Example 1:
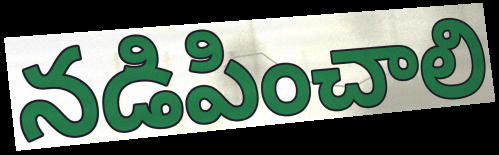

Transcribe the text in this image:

నడిపించాలి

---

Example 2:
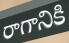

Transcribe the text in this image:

రాగానికి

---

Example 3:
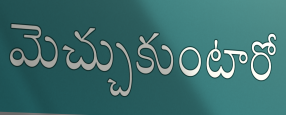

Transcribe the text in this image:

మెచ్చుకుంటారో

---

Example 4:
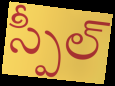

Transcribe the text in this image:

స్పీల్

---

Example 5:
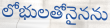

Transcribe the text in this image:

లోభులతోనైనను